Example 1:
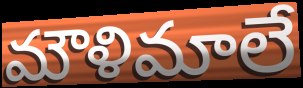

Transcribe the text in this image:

మౌళిమాలే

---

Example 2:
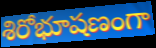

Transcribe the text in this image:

శిరోభూషణంగా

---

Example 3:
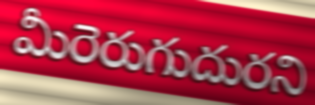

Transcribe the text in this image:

మీరెరుగుదురని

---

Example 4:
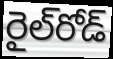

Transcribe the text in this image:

రైల్‌రోడ్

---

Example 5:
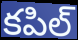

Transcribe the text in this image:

కపిల్